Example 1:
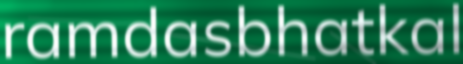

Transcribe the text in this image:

ramdasbhatkal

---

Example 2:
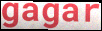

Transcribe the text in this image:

gagar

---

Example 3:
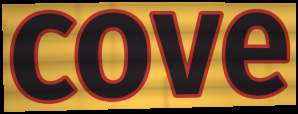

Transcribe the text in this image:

cove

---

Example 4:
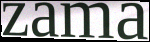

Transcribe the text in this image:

zama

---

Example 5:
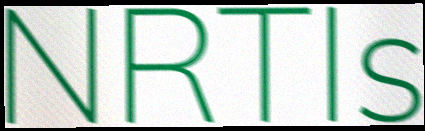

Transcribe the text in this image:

NRTIs